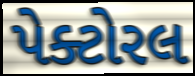
પેક્ટોરલ